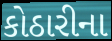
કોઠારીના